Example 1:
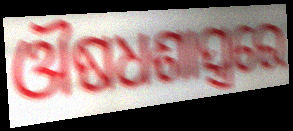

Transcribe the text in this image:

ଔଷଧଶାସ୍ତ୍ରରେ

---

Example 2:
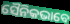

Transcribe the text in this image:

ସୈନିକଭାବେ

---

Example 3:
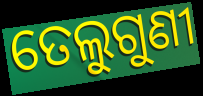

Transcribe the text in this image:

ତେଲୁଗୁଣୀ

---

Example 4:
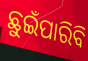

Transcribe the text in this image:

ଛୁଇଁପାରିବି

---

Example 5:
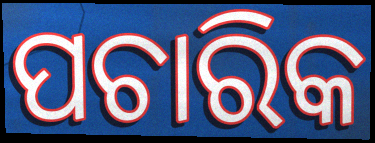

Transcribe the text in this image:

ପଚାରିକ